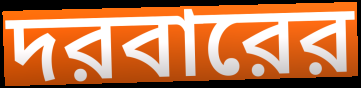
দরবারের